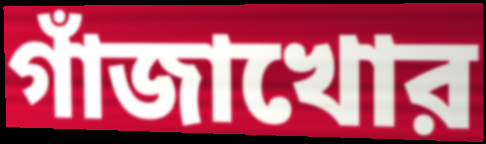
গাঁজাখোর